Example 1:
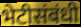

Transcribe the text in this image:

भेटीसंबंधी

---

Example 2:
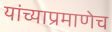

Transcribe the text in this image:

यांच्याप्रमाणेच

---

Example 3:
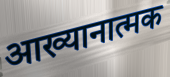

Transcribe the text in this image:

आख्यानात्मक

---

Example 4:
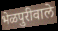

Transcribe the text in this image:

भेळपुरीवाले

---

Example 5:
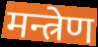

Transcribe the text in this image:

मन्त्रेण